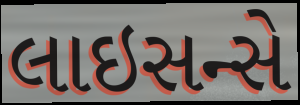
લાઇસન્સે